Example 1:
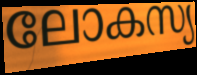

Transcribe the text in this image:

ലോകസ്യ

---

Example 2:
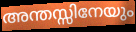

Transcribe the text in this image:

അന്തസ്സിനേയും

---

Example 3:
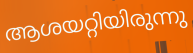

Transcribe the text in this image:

ആശയറ്റിയിരുന്നു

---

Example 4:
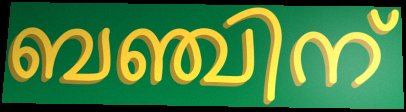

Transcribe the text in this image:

ബഞ്ചിന്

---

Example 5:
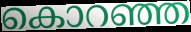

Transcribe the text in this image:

കൊറഞ്ഞ